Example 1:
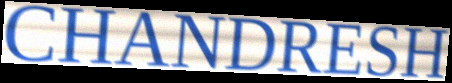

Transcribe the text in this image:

CHANDRESH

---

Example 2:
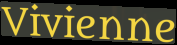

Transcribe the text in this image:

Vivienne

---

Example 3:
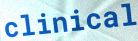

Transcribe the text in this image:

clinical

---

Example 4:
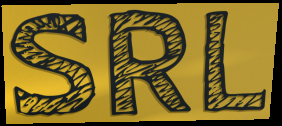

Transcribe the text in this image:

SRL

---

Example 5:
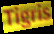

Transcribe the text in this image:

Tigris